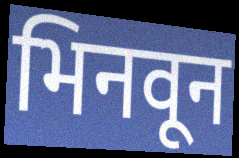
भिनवून